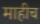
माहीच